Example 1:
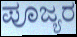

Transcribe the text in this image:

ಪೂಜ್ಯರ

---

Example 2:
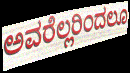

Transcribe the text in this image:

ಅವರೆಲ್ಲರಿಂದಲೂ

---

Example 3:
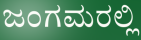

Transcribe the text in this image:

ಜಂಗಮರಲ್ಲಿ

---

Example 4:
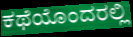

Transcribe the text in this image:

ಕಥೆಯೊಂದರಲ್ಲಿ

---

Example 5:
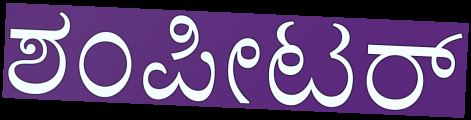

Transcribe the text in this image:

ಶಂಪೀಟರ್